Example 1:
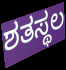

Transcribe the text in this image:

ಶತಸ್ಥಲ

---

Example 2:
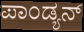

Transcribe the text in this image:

ಪಾಂಡ್ಯನ್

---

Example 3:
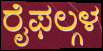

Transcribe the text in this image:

ರೈಫಲ್ಗಳ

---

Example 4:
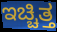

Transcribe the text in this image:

ಇಚ್ಚಿತ್ತ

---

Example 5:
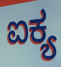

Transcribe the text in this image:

ಐಕ್ಯ